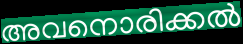
അവനൊരിക്കൽ